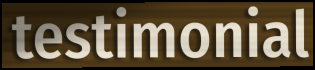
testimonial